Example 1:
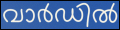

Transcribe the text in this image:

വാർഡിൽ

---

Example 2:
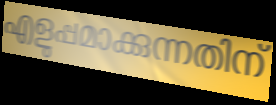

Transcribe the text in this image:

എളുപ്പമാക്കുന്നതിന്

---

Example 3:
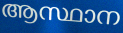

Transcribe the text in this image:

ആസ്ഥാന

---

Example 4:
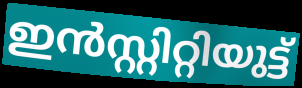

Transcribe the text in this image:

ഇൻസ്റ്റിറ്റിയുട്ട്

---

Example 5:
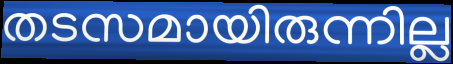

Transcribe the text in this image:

തടസമായിരുന്നില്ല